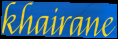
khairane